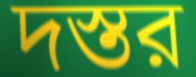
দস্তর